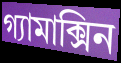
গ্যামাক্সিন